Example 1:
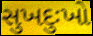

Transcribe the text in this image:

સુખદુઃખો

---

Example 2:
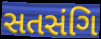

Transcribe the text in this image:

સતસંગિ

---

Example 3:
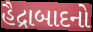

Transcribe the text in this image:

હૈદ્રાબાદનો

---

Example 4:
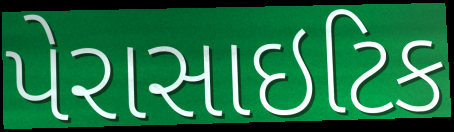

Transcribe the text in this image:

પેરાસાઇટિક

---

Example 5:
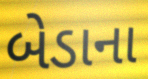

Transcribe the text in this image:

બેડાના